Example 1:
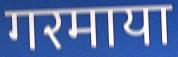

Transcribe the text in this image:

गरमाया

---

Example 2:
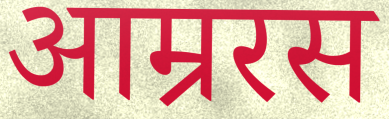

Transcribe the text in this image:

आम्ररस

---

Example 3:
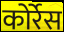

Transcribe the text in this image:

कोर्रेस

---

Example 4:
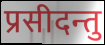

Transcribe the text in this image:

प्रसीदन्तु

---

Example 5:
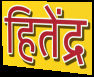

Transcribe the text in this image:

हितेंद्र